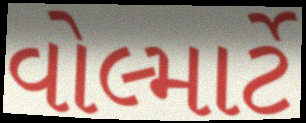
વોલ્માર્ટે